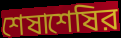
শেষাশেষির